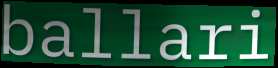
ballari